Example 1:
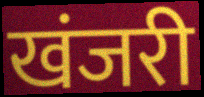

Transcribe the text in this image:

खंजरी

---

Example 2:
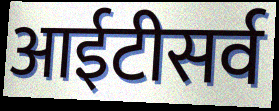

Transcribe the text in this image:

आईटीसर्व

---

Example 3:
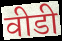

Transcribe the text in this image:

वीडी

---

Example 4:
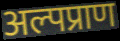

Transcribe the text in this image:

अल्पप्राण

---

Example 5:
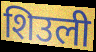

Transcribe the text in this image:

शिउली